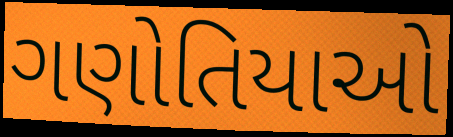
ગણોતિયાઓ